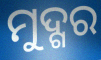
ମୁଦ୍ଗର